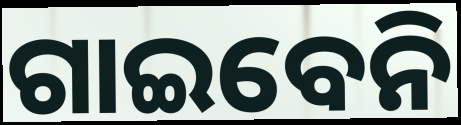
ଗାଇବେନି